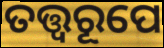
ତତ୍ତ୍ୱରୂପେ